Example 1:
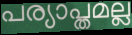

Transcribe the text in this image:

പര്യാപ്തമല്ല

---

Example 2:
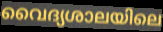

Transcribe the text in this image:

വൈദ്യശാലയിലെ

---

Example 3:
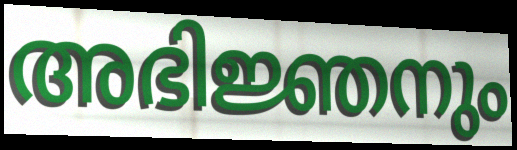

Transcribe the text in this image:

അഭിജ്ഞനും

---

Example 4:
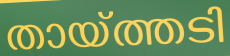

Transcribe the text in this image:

തായ്ത്തടി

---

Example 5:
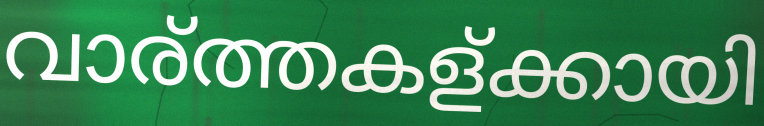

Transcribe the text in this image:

വാര്ത്തകള്ക്കായി